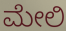
ಮೇಲಿ